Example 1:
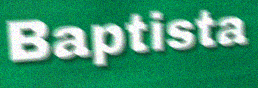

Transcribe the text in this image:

Baptista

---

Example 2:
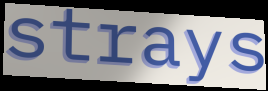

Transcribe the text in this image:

strays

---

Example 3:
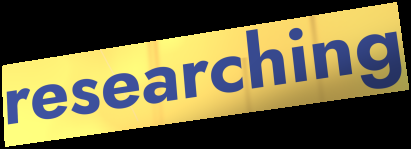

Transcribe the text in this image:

researching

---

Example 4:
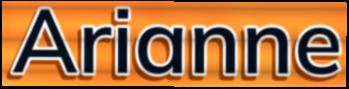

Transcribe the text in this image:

Arianne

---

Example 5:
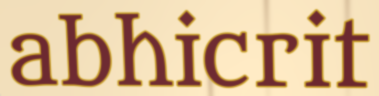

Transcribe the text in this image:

abhicrit